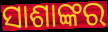
ସାଶାଙ୍କର